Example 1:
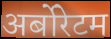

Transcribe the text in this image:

अर्बोरेटम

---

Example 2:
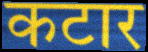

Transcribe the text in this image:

कटार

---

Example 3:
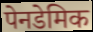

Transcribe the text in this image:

पेनडेमिक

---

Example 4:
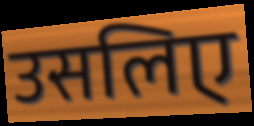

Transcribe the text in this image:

उसलिए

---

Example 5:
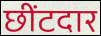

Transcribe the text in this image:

छींटदार